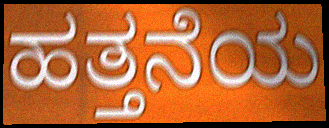
ಹತ್ತನೆಯ